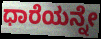
ಧಾರೆಯನ್ನೇ